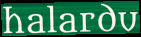
halardu